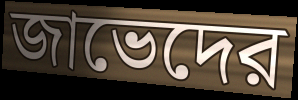
জাভেদের